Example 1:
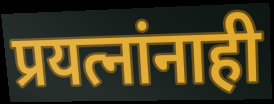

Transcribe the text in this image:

प्रयत्नांनाही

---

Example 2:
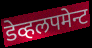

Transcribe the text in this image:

डेव्हलपमेन्ट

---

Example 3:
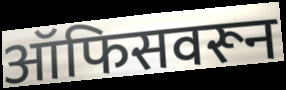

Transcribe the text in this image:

ऑफिसवरून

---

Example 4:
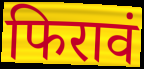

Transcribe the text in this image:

फिरावं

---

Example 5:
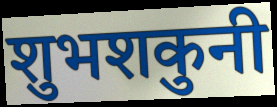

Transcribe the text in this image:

शुभशकुनी